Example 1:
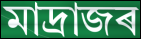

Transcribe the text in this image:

মাদ্ৰাজৰ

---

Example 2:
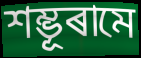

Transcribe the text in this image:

শম্ভূৰামে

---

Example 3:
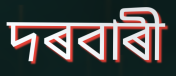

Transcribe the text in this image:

দৰবাৰী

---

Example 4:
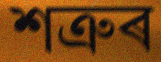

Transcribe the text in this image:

শত্ৰুৰ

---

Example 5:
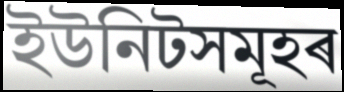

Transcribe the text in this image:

ইউনিটসমূহৰ